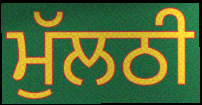
ਮੁੱਲਠੀ